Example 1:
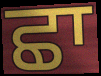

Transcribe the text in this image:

ਛਾ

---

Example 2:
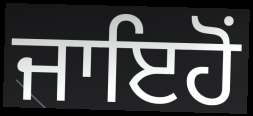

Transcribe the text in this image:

ਜਾਇਹੋਂ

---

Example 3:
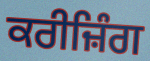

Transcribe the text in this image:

ਕਰੀਜ਼ਿੰਗ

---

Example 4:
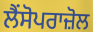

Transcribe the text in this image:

ਲੈਂਸੋਪਰਾਜ਼ੋਲ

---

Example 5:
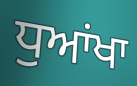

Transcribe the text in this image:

ਧੁਆਂਖਾ